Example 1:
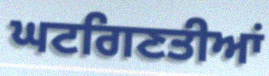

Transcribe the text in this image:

ਘਟਗਿਣਤੀਆਂ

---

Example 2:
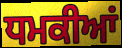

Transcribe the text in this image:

ਧਮਕੀਆਂ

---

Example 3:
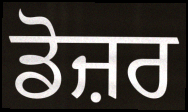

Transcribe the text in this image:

ਡੋਜ਼ਰ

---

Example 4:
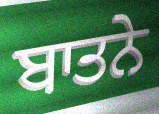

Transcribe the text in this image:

ਬਾਤਨੇ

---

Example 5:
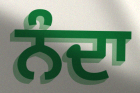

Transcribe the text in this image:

ਨੰਦਾ